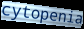
cytopenia